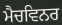
ਮੈਚਵਿਨਰ